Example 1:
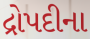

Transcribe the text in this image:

દ્રોપદીના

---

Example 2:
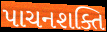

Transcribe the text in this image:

પાચનશક્તિ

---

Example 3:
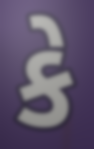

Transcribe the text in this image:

કે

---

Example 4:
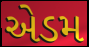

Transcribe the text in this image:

એડમ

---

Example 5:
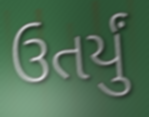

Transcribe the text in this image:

ઉતર્યું